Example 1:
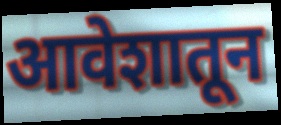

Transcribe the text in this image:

आवेशातून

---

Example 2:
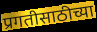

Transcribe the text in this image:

प्रगतीसाठीच्या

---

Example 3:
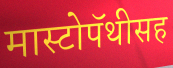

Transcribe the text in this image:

मास्टोपॅथीसह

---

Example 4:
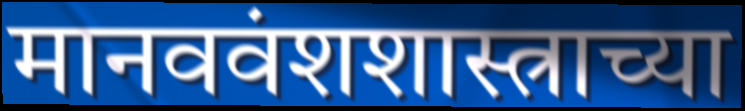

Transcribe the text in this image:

मानववंशशास्त्राच्या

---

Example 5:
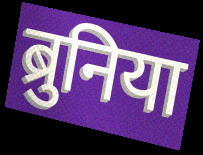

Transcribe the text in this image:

ब्रुनिया